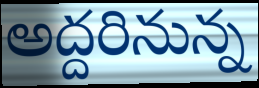
అద్దరినున్న